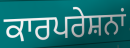
ਕਾਰਪਰੇਸ਼ਨਾਂ